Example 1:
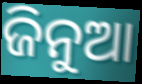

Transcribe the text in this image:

ଜିନୁଆ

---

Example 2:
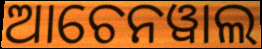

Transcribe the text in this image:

ଆଚେନୱାଲ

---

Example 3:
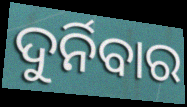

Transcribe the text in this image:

ଦୁର୍ନିବାର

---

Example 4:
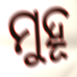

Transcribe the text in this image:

ମୁହୂ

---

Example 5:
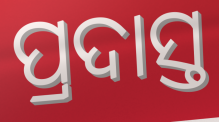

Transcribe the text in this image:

ପ୍ରଦାସ୍ତ